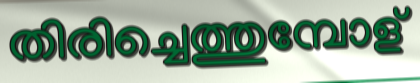
തിരിച്ചെത്തുമ്പോള്